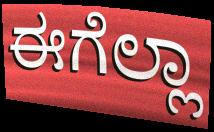
ಈಗೆಲ್ಲಾ